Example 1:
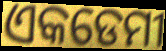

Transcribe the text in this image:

ଏକଡେମୀ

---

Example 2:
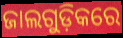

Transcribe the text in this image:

ଜାଲଗୁଡ଼ିକରେ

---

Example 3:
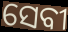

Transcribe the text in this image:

ସେବୀ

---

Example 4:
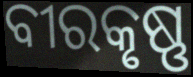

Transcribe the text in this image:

ବୀରକୃଷ୍ଣ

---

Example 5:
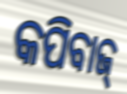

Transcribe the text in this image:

କପିବାଜ୍